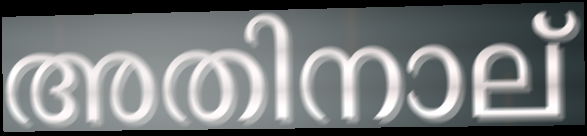
അതിനാല്